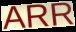
ARR